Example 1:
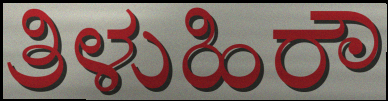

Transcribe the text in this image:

ತಿಳುಹಿರೌ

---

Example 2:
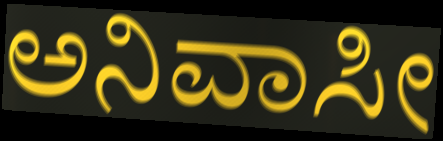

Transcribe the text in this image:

ಅನಿವಾಸೀ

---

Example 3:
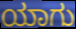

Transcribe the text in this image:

ಯಾಗು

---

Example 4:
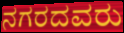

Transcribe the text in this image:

ನಗರದವರು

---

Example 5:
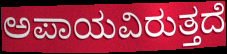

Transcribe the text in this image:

ಅಪಾಯವಿರುತ್ತದೆ